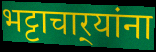
भट्टाचार्यांना